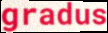
gradus